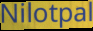
Nilotpal